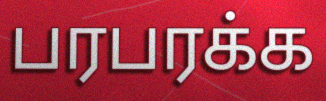
பரபரக்க